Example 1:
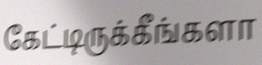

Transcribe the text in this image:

கேட்டிருக்கீங்களா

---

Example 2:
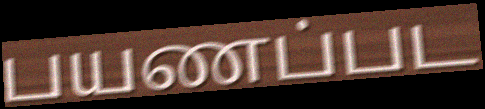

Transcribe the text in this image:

பயணப்பட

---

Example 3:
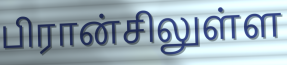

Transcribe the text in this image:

பிரான்சிலுள்ள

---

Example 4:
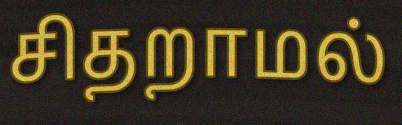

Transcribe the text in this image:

சிதறாமல்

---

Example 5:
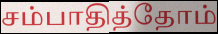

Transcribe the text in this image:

சம்பாதித்தோம்